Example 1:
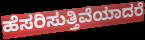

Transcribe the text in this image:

ಹೆಸರಿಸುತ್ತಿವೆಯಾದರೆ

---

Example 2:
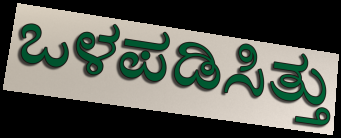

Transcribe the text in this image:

ಒಳಪಡಿಸಿತ್ತು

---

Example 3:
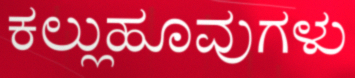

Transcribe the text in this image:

ಕಲ್ಲುಹೂವುಗಳು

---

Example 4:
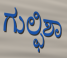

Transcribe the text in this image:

ಗುಲ್ಫಿಶಾ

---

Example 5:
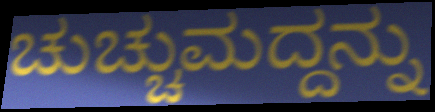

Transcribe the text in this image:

ಚುಚ್ಚುಮದ್ದನ್ನು